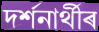
দৰ্শনাৰ্থীৰ